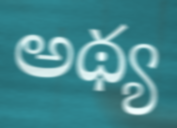
అథ్య